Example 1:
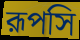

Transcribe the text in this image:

রূপসি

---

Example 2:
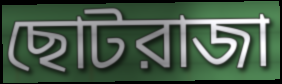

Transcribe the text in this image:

ছোটরাজা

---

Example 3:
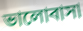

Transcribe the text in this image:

ভালোবাসা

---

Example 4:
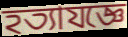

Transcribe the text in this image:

হত্যাযজ্ঞে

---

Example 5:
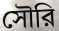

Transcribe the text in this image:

সৌরি